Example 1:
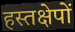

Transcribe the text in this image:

हस्तक्षेपों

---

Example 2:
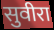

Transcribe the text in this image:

सुवीरा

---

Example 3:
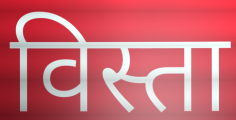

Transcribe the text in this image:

विस्ता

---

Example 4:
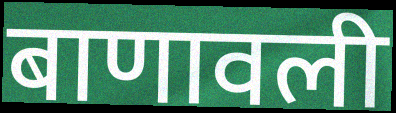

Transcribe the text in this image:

बाणावली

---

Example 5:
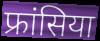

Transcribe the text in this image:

फ्रांसिया